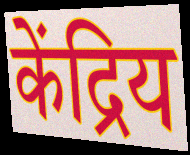
केंद्रिय